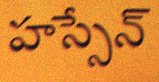
హస్సేన్